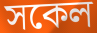
সকেল